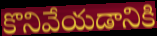
కొనివేయడానికి